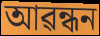
আৱন্ধন